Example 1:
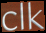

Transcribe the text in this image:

clk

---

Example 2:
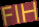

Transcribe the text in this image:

FIH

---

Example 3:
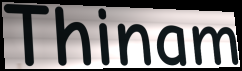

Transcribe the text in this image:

Thinam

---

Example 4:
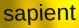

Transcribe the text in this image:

sapient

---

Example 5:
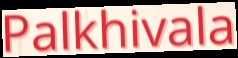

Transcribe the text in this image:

Palkhivala